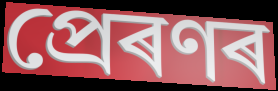
প্ৰেৰণৰ